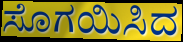
ಸೊಗಯಿಸಿದ